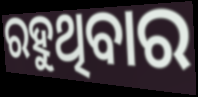
ରହୁଥିବାର